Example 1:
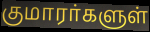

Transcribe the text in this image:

குமாரர்களுள்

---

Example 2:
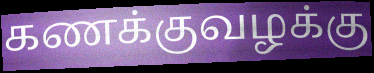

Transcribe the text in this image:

கணக்குவழக்கு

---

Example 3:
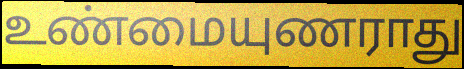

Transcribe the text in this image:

உண்மையுணராது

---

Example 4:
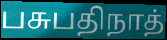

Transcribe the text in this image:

பசுபதிநாத்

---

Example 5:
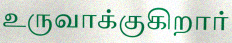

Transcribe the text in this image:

உருவாக்குகிறார்